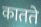
कातते